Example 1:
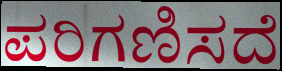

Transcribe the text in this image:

ಪರಿಗಣಿಸದೆ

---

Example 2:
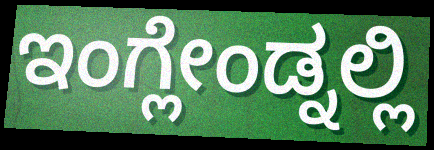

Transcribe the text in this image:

ಇಂಗ್ಲೇಂಡ್ನಲ್ಲಿ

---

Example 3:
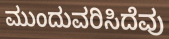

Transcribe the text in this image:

ಮುಂದುವರಿಸಿದೆವು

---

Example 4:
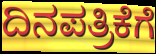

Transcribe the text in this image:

ದಿನಪತ್ರಿಕೆಗೆ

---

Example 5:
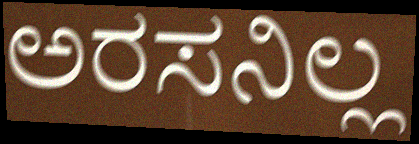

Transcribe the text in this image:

ಅರಸನಿಲ್ಲ